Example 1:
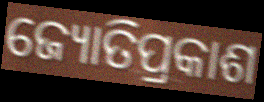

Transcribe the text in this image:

ଜ୍ୟୋତିପ୍ରକାଶ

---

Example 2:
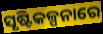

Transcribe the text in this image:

ସୃଷ୍ଟିକଳ୍ପନାରେ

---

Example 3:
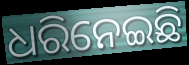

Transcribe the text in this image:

ଧରିନେଇଛି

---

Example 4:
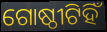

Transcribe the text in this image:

ଗୋଷ୍ଠୀଟିହିଁ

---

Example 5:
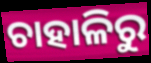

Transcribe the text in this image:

ଚାହାଳିରୁ